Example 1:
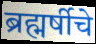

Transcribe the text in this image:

ब्रह्मर्षीचे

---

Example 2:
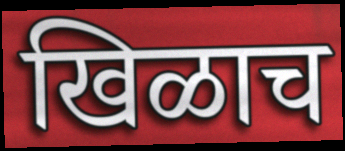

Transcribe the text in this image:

खिळाच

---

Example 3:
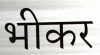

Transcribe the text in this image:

भीकर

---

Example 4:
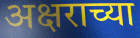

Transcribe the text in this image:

अक्षराच्या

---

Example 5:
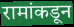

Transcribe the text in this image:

रामांकडून